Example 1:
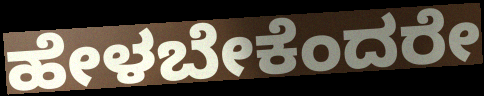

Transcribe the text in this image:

ಹೇಳಬೇಕೆಂದರೇ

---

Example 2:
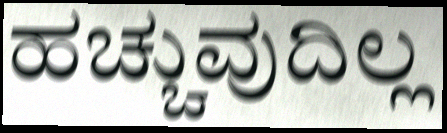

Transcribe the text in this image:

ಹಚ್ಚುವುದಿಲ್ಲ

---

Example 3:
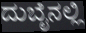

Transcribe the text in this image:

ದುಬೈನಲ್ಲಿ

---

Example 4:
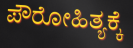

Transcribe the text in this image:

ಪೌರೋಹಿತ್ಯಕ್ಕೆ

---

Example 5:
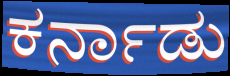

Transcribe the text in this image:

ಕರ್ನಾಡು